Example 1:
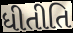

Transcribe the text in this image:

ધીતીતિ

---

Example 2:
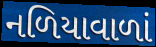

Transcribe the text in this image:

નળિયાવાળાં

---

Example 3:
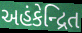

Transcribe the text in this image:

અહંકેન્દ્રિત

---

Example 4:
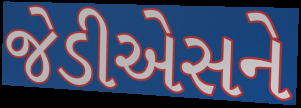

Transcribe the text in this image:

જેડીએસને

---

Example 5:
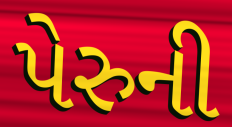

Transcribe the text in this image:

પેરુની